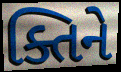
ક્તિને